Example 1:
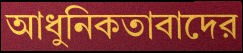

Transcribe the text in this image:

আধুনিকতাবাদের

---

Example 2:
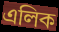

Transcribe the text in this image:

এলিক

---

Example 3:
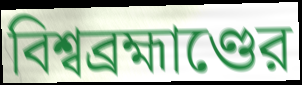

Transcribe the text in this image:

বিশ্বব্রহ্মাণ্ডের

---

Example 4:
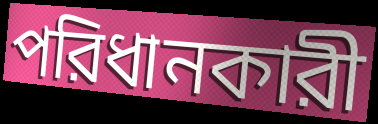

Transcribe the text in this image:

পরিধানকারী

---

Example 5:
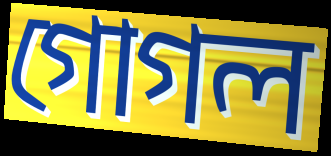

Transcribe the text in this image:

গোগল